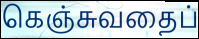
கெஞ்சுவதைப்